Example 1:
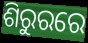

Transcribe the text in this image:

ଶିରୁରରେ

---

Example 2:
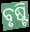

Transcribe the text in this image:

ବୃଷ୍ଟି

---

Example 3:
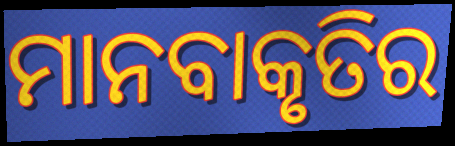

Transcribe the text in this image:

ମାନବାକୃତିର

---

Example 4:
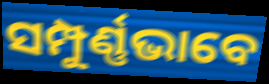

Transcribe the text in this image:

ସମ୍ପୁର୍ଣ୍ଣଭାବେ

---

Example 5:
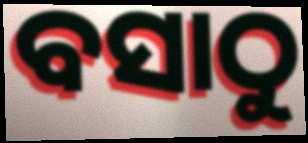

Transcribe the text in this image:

ବସାଠୁ